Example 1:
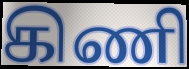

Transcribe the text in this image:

கிணி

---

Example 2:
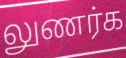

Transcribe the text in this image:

லுணர்க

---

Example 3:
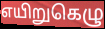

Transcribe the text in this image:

எயிறுகெழு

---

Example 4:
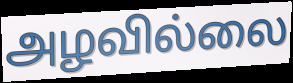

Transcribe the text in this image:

அழவில்லை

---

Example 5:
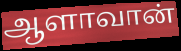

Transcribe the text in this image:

ஆளாவான்